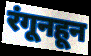
रंगूनहून